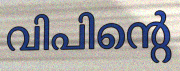
വിപിന്റെ